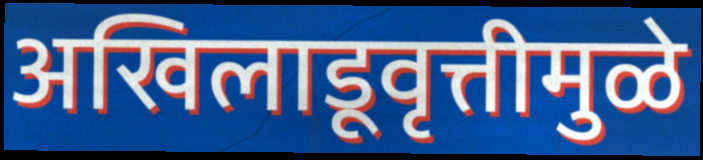
अखिलाडूवृत्तीमुळे